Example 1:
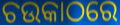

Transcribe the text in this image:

ଚଉକାଠରେ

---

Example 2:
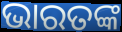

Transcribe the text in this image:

ଭାରତଙ୍କ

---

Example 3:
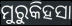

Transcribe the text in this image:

ମୁରୁକିହସା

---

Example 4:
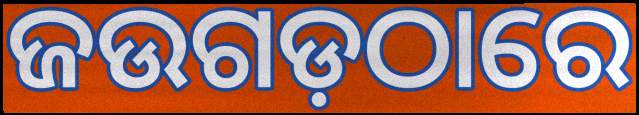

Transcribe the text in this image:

ଜଉଗଡ଼ଠାରେ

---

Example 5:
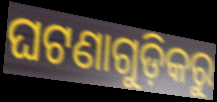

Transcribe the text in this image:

ଘଟଣାଗୁଡ଼ିକରୁ